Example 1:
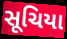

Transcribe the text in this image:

સૂચિયા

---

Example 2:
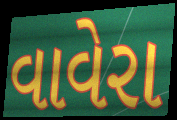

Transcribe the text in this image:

વાવેરા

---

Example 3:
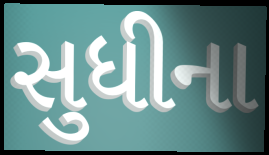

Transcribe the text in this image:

સુધીના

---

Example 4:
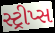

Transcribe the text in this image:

સ્ટ્રીપ્સ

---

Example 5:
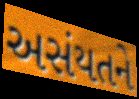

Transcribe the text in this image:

અસંયતને